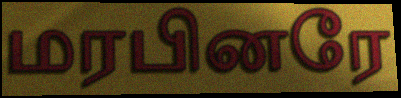
மரபினரே